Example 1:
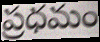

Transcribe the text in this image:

ప్రధమం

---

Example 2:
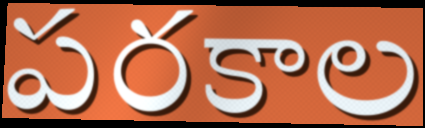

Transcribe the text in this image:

పరకాల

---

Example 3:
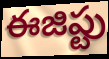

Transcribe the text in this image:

ఈజిప్టు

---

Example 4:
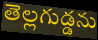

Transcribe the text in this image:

తెల్లగుడ్డను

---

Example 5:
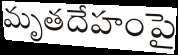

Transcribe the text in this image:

మృతదేహంపై